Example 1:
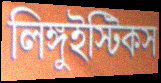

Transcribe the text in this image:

লিঙ্গুইস্টিকস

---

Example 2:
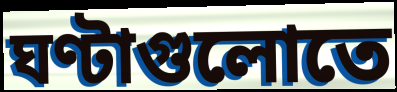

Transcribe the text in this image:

ঘণ্টাগুলোতে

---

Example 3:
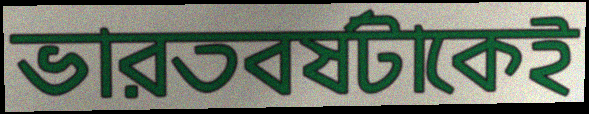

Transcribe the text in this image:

ভারতবর্ষটাকেই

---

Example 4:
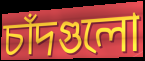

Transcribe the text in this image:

চাঁদগুলো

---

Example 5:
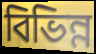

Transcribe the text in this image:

বিভিন্ন